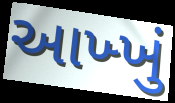
આખ્ખું